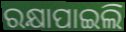
ରକ୍ଷାପାଇଲି